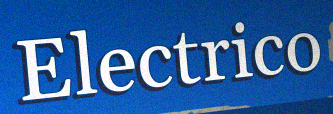
Electrico